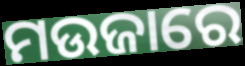
ମଉଜାରେ